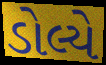
ડોલ્યે